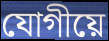
যোগীয়ে